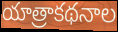
యాత్రాకథనాల